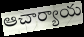
ఆచార్యాయ